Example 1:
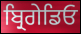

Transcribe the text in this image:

ਬ੍ਰਿਗੇਡਿਓ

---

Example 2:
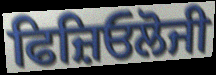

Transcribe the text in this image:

ਫਿਜ਼ਿਓਲੋਜੀ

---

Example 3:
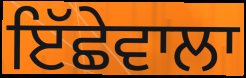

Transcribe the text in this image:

ਇੱਛੇਵਾਲਾ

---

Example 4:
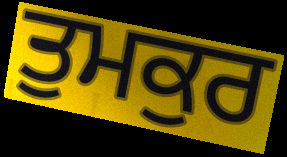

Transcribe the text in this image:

ਤੁਮਕੁਰ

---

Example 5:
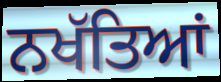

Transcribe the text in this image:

ਨਖੱਤਿਆਂ